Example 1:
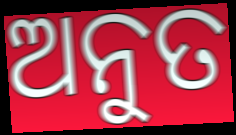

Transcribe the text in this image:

ଅନୁତ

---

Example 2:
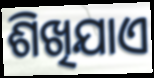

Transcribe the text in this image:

ଶିଖିଯାଏ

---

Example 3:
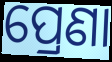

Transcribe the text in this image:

ପ୍ରେଣା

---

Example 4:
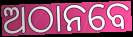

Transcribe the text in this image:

ଅଠାନବେ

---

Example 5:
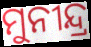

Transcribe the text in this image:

ମୁନୀନ୍ଦ୍ର